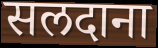
सलदाना